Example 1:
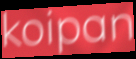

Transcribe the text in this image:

koipan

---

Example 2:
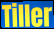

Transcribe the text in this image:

Tiller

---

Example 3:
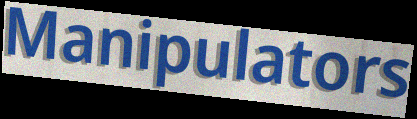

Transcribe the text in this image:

Manipulators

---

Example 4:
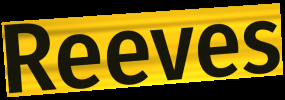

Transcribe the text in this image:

Reeves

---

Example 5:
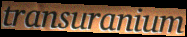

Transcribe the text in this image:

transuranium